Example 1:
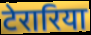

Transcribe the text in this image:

टेरारिया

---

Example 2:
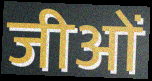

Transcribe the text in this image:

जीओं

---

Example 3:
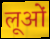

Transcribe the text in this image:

लूओं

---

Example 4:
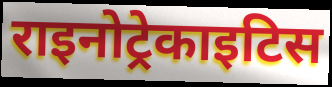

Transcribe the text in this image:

राइनोट्रेकाइटिस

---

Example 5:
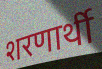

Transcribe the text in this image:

शरणार्थी